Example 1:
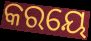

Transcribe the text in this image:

କରୟେ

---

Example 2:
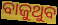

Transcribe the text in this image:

ବାଜୁଥୁବ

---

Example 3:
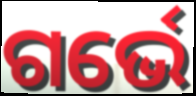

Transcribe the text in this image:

ଗର୍ଭେ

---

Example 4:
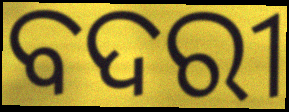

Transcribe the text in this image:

ବଦରୀ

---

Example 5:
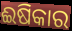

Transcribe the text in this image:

ଈଷିକାର